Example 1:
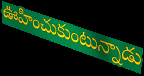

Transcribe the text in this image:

ఊహించుకుంటున్నాడు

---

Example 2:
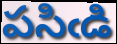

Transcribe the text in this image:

పసిఁడి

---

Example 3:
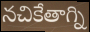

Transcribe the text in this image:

నచికేతాగ్ని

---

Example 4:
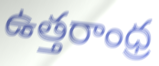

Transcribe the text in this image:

ఉత్తరాంధ్ర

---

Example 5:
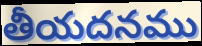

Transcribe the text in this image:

తీయదనము